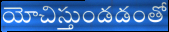
యోచిస్తుండడంతో